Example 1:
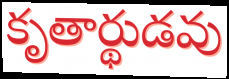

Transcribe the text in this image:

కృతార్థుడవు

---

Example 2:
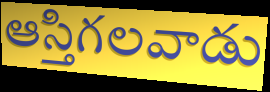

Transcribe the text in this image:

ఆస్తిగలవాడు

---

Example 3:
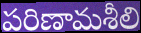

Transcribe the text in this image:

పరిణామశీలి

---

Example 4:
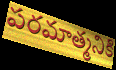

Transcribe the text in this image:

పరమాత్మనికి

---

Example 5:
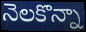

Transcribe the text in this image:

నెలకొన్నా